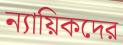
ন্যায়িকদের